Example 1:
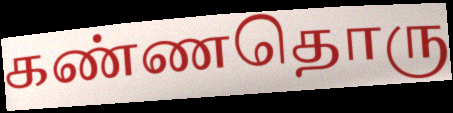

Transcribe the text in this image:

கண்ணதொரு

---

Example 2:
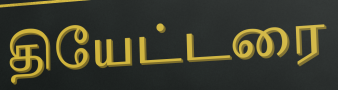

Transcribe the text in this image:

தியேட்டரை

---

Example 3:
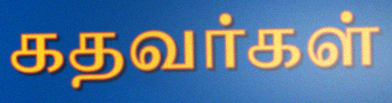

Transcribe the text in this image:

கதவர்கள்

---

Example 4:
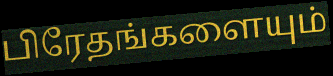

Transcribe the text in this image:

பிரேதங்களையும்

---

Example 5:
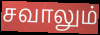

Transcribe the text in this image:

சவாலும்